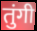
तुंगी